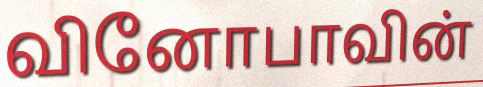
வினோபாவின்